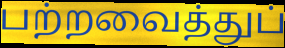
பற்றவைத்துப்